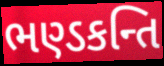
ભણ્ડકન્તિ